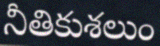
నీతికుశలుం